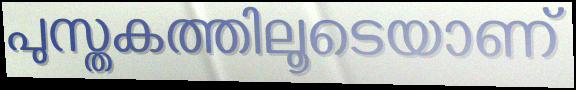
പുസ്തകത്തിലൂടെയാണ്